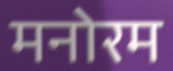
मनोरम